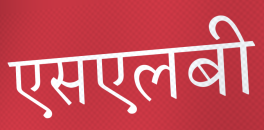
एसएलबी